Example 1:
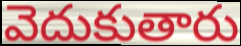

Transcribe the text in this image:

వెదుకుతారు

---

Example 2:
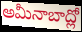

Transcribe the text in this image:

అమీనాబాద్లో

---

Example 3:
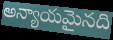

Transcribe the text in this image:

అన్యాయమైనది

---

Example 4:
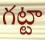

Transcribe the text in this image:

గట్టా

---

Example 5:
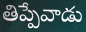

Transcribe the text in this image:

తిప్పేవాడు